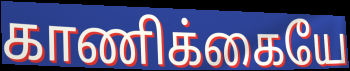
காணிக்கையே